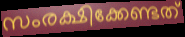
സംരക്ഷിക്കേണ്ടത്